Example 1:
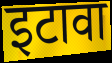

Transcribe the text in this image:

इटावा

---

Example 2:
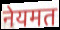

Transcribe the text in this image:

नेयमत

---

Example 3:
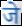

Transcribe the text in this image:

जे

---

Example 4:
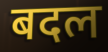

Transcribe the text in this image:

बदल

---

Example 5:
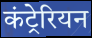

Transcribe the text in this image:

कंट्रेरियन